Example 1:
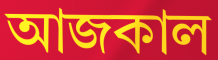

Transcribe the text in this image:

আজকাল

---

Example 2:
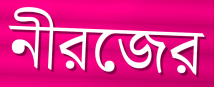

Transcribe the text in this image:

নীরজের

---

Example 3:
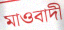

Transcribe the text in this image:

মাওবাদী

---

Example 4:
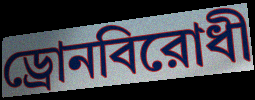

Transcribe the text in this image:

ড্রোনবিরোধী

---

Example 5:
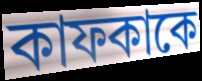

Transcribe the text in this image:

কাফকাকে